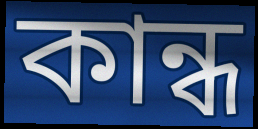
কান্ধ